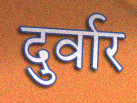
दुर्वार